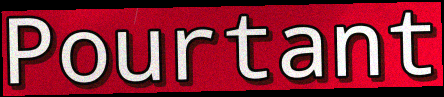
Pourtant